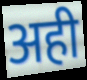
अही